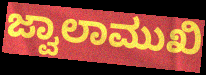
ಜ್ವಾಲಾಮುಖಿ